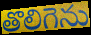
తొలిగెను